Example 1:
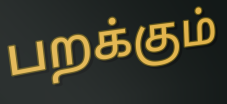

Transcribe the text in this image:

பறக்கும்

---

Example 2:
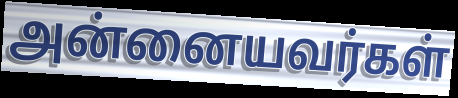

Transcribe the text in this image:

அன்னையவர்கள்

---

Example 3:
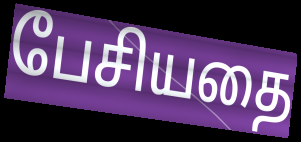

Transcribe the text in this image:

பேசியதை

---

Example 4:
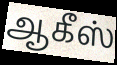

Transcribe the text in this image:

ஆகீஸ்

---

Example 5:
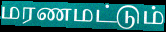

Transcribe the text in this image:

மரணமட்டும்